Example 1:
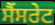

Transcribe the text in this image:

ਸੈਂਸਰੇਟ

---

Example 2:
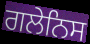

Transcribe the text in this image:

ਗਲੇਨਿਸ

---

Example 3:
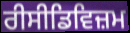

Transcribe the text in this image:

ਰੀਸੀਡਿਵਿਜ਼ਮ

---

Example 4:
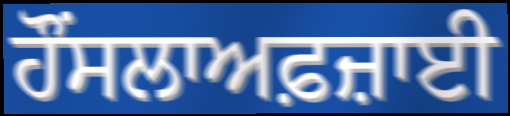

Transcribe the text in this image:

ਹੌਂਸਲਾਅਫ਼ਜ਼ਾਈ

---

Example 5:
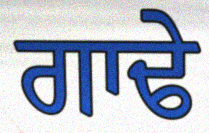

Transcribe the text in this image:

ਗਾਢੇ